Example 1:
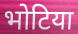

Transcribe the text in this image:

भोटिया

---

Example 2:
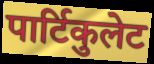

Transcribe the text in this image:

पार्टिकुलेट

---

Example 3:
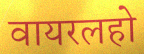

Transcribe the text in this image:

वायरलहो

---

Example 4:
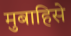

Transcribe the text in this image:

मुबाहिसे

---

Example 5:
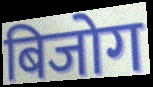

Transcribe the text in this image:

बिजोग